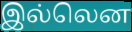
இல்லென